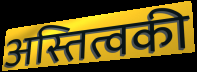
अस्तित्वकी